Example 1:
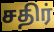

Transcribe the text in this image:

சதிர்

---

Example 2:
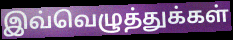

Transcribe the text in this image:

இவ்வெழுத்துக்கள்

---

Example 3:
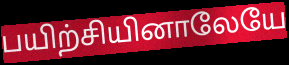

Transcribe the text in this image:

பயிற்சியினாலேயே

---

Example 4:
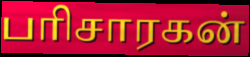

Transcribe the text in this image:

பரிசாரகன்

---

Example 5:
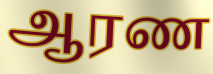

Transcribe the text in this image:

ஆரண